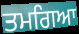
ਤਮਗਿਆ